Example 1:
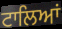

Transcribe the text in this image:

ਟਾਲਿਆਂ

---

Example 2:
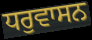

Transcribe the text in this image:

ਧਰੁਵਾਸਨ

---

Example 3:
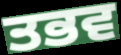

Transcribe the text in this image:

ਤਭਵ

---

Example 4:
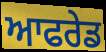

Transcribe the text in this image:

ਆਫਰੇਡ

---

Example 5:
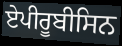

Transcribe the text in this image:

ਏਪੀਰੂਬੀਸਿਨ